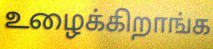
உழைக்கிறாங்க